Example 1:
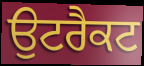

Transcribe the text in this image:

ਉਟਰੈਕਟ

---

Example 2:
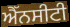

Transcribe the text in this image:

ਐੱਨਸੀਟੀ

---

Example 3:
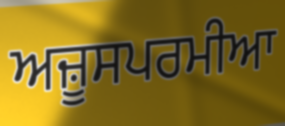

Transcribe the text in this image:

ਅਜ਼ੂਸਪਰਮੀਆ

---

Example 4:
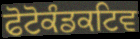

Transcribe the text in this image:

ਫੋਟੋਕੰਡਕਟਿਵ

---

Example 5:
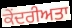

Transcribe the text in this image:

ਕੇਂਦਰੀਅਤਾ